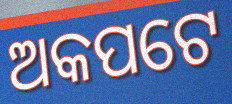
ଅକପଟେ